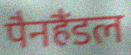
पैनहैंडल